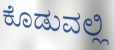
ಕೊಡುವಲ್ಲಿ